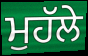
ਮੁਹੱਲੇ